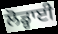
ਲੋਡ੍ਹਾਈ